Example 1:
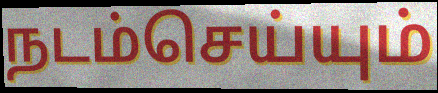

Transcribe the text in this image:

நடம்செய்யும்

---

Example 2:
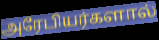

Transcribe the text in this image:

அரேபியர்களால்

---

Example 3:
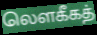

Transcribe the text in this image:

லௌகீகத்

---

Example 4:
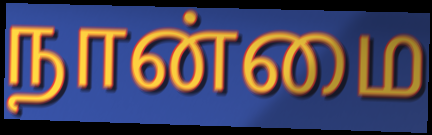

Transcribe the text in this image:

நான்மை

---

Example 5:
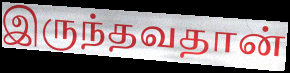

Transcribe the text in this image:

இருந்தவதான்